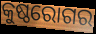
କୁଷ୍ଠରୋଗର